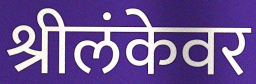
श्रीलंकेवर